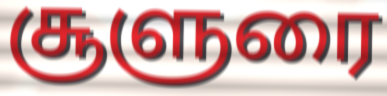
சூளுரை